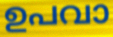
ഉപവാ